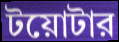
টয়োটার